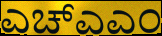
ಎಚ್ಎಎಂ